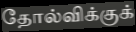
தோல்விக்குக்